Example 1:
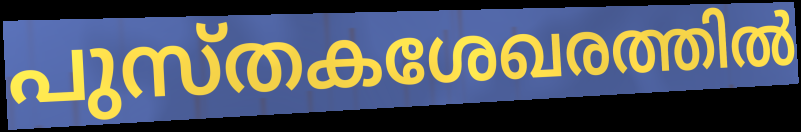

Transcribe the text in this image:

പുസ്തകശേഖരത്തിൽ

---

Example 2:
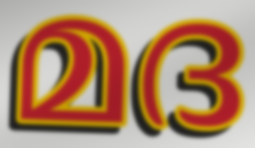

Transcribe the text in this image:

മദ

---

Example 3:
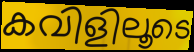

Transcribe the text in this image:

കവിളിലൂടെ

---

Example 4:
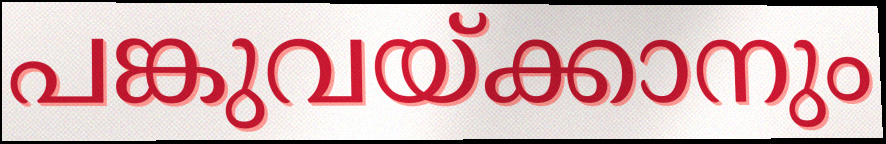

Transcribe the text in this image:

പങ്കുവയ്ക്കാനും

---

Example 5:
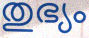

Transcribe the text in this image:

തുഭ്യം